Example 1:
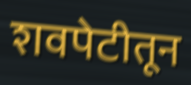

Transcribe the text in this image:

शवपेटीतून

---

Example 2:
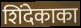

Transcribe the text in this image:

शिंदेकाका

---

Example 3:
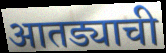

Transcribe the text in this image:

आतड्याची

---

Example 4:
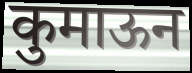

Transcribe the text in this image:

कुमाऊन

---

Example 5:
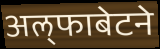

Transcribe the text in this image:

अल्फाबेटने